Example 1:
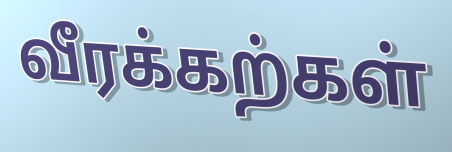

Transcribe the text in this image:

வீரக்கற்கள்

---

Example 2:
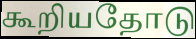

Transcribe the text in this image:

கூறியதோடு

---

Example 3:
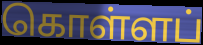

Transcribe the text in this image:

கொள்ளப்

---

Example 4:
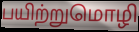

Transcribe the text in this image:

பயிற்றுமொழி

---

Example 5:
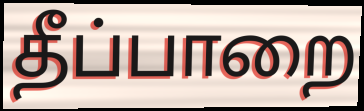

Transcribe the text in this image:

தீப்பாறை